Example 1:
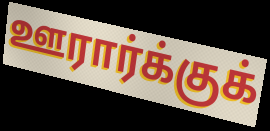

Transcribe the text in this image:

ஊரார்க்குக்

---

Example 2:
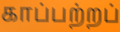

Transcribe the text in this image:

காப்பற்றப்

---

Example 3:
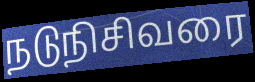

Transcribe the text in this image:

நடுநிசிவரை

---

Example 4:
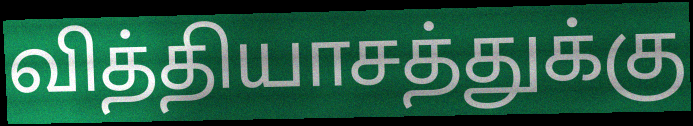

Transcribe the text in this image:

வித்தியாசத்துக்கு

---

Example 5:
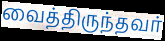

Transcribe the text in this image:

வைத்திருந்தவர்